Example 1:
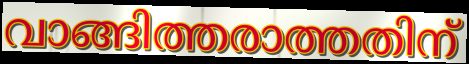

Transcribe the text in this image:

വാങ്ങിത്തരാത്തതിന്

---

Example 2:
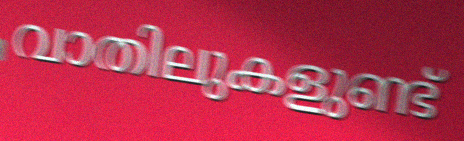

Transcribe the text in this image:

വാതിലുകളുണ്ട്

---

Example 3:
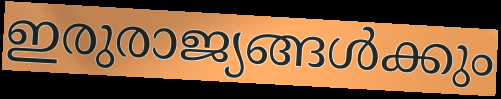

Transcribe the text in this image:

ഇരുരാജ്യങ്ങൾക്കും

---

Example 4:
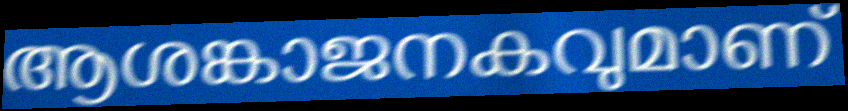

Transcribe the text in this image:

ആശങ്കാജനകവുമാണ്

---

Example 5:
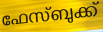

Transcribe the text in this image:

ഫേസ്ബുക്ക്